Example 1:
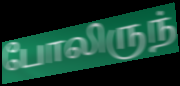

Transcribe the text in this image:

போலிருந்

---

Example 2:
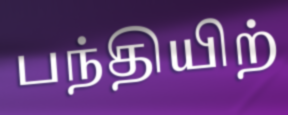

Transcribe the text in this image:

பந்தியிற்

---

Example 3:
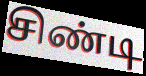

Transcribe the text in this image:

சிண்டி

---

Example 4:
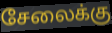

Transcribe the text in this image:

சேலைக்கு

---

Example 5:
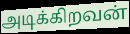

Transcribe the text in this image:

அடிக்கிறவன்